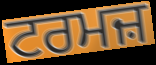
ਟਰਮਜ਼